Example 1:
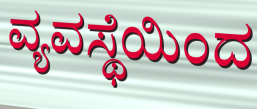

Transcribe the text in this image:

ವ್ಯವಸ್ಥೆಯಿಂದ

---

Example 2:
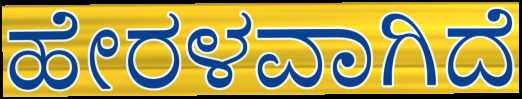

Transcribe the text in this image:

ಹೇರಳವಾಗಿದೆ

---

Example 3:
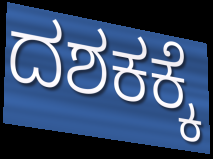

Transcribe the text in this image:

ದಶಕಕ್ಕೆ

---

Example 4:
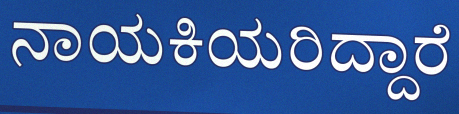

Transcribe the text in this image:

ನಾಯಕಿಯರಿದ್ದಾರೆ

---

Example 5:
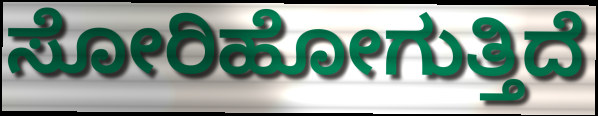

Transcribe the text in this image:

ಸೋರಿಹೋಗುತ್ತಿದೆ